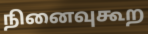
நினைவுகூற